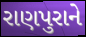
રાણપુરાને